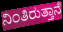
ನಿಂತಿರುತ್ತಾನೆ